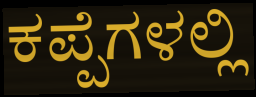
ಕಪ್ಪೆಗಳಲ್ಲಿ